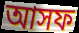
আসফ